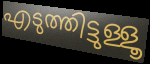
എടുത്തിട്ടുള്ളൂ